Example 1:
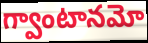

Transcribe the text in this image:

గ్వాంటానమో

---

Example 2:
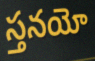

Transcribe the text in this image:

స్తనయో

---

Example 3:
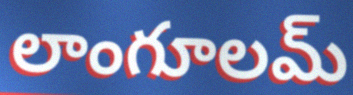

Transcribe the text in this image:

లాంగూలమ్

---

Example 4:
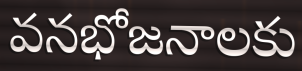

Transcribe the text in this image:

వనభోజనాలకు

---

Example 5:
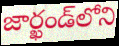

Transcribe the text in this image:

జార్ఖండ్‌లోని